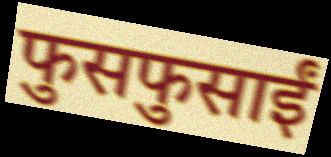
फुसफुसाईं